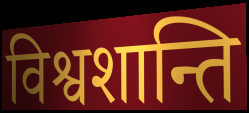
विश्वशान्ति